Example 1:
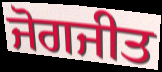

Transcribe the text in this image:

ਜੋਗਜੀਤ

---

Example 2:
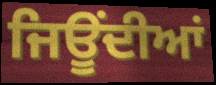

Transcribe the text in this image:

ਜਿਊਂਦੀਆਂ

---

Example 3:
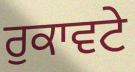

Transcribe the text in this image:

ਰੁਕਾਵਟੇ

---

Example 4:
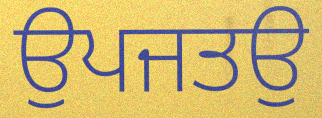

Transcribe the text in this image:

ਉਪਜਤਉ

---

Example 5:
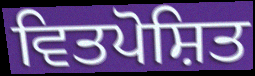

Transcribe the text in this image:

ਵਿਤਪੋਸ਼ਿਤ